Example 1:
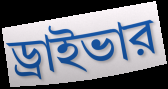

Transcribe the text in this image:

ড্রাইভার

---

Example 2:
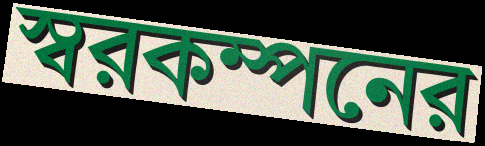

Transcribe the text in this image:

স্বরকম্পনের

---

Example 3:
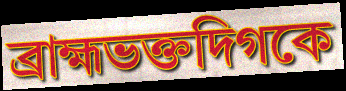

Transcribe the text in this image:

ব্রাহ্মভক্তদিগকে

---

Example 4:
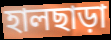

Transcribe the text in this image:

হালছাড়া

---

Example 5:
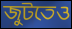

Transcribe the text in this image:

জুটতেও